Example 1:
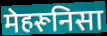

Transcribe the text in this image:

मेहरूनिसा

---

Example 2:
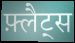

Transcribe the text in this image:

फ़्लैट्स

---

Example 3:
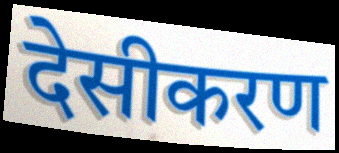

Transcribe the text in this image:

देसीकरण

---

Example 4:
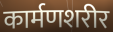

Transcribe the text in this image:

कार्मणशरीर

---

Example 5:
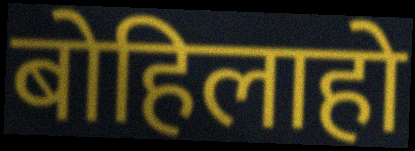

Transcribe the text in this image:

बोहिलाहो